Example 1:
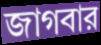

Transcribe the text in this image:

জাগবার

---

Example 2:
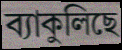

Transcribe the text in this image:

ব্যাকুলিছে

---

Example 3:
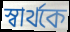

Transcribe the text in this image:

স্বার্থকে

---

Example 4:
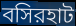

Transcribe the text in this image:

বসিরহাট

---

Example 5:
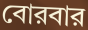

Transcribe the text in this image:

বোরবার